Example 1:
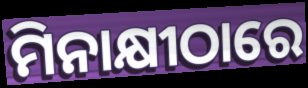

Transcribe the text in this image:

ମିନାକ୍ଷୀଠାରେ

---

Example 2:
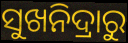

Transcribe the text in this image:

ସୁଖନିଦ୍ରାରୁ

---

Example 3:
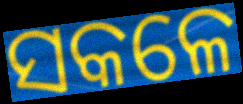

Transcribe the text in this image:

ସକଳେ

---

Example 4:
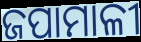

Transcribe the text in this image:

ଜପାମାଳୀ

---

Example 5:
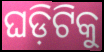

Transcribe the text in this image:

ଘଡ଼ିଟିକୁ